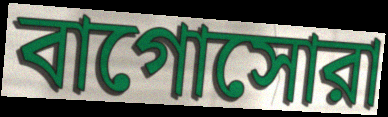
বাগোসোরা